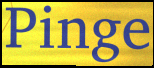
Pinge